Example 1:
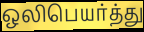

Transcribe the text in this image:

ஒலிபெயர்த்து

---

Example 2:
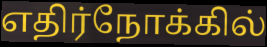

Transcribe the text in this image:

எதிர்நோக்கில்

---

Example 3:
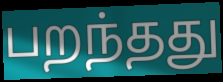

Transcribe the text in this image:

பறந்தது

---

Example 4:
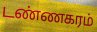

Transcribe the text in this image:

டண்ணகரம்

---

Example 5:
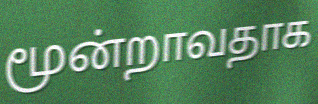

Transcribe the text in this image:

மூன்றாவதாக